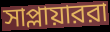
সাপ্লায়াররা